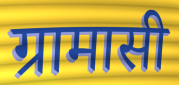
ग्रामासी